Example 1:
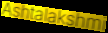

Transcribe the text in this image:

Ashtalakshmi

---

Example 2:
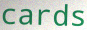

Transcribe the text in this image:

cards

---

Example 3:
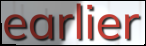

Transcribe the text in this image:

earlier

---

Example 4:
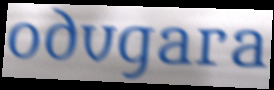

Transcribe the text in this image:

odugara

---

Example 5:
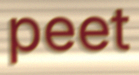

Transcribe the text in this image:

peet